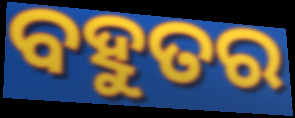
ବହୁତର